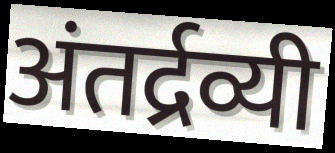
अंतर्द्रव्यी